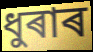
ধুৰাৰ